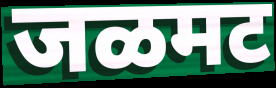
जळमट